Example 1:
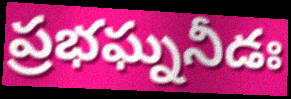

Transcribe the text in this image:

ప్రభఘ్ననీడః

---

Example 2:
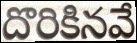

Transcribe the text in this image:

దొరికినవే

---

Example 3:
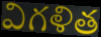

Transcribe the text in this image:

విగళిత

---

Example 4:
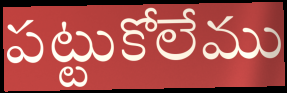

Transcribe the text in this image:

పట్టుకోలేము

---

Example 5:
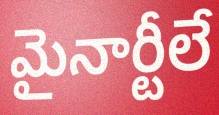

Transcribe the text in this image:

మైనార్టీలే